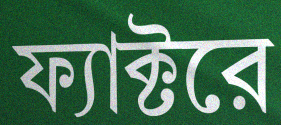
ফ্যাক্টরে